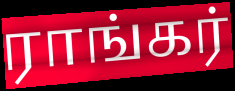
ராங்கர்